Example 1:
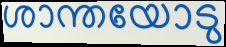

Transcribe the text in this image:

ശാന്തയോടു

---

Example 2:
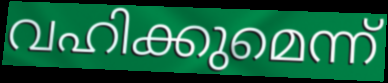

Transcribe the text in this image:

വഹിക്കുമെന്ന്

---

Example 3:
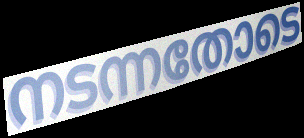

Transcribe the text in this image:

നടന്നതോടെ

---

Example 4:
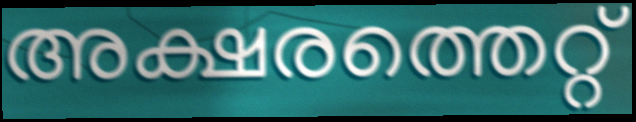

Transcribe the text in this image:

അക്ഷരത്തെറ്റ്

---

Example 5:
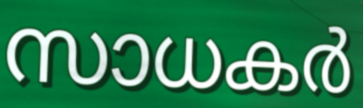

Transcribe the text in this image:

സാധകർ